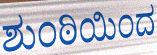
ಶುಂಠಿಯಿಂದ